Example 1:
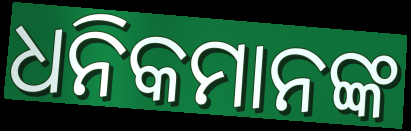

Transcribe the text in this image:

ଧନିକମାନଙ୍କ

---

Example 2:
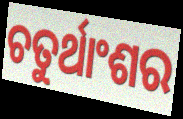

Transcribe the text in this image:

ଚତୁର୍ଥାଂଶର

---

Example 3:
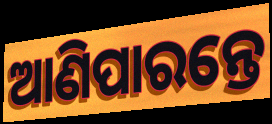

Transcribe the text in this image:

ଆଣିପାରନ୍ତେ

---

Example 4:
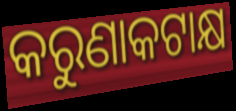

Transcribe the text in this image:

କରୁଣାକଟାକ୍ଷ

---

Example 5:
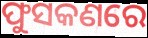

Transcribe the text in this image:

ଫୁସକଣରେ